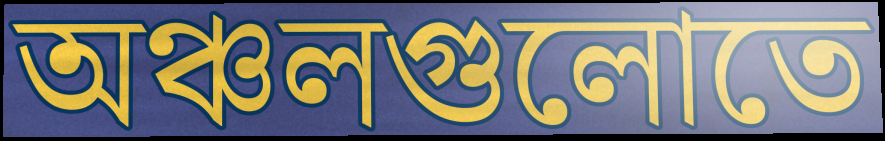
অঞ্চলগুলোতে